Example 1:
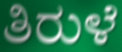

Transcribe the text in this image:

ತಿರುಳೆ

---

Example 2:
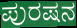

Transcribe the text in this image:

ಪುರಷನ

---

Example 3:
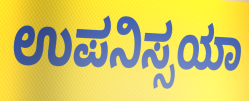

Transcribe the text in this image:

ಉಪನಿಸ್ಸಯಾ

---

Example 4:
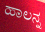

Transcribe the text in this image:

ಹಾಲನ್ನ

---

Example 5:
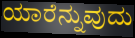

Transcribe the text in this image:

ಯಾರೆನ್ನುವುದು